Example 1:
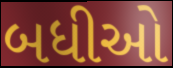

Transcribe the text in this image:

બધીઓ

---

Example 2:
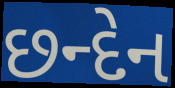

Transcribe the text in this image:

છન્દેન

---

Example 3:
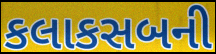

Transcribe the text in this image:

કલાકસબની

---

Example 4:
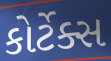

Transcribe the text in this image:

કોર્ટેક્સ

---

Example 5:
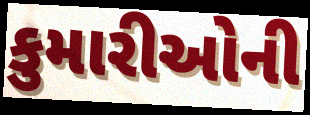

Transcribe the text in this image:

કુમારીઓની